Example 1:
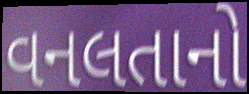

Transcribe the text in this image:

વનલતાનો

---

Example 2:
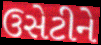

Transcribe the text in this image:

ઉસેટીને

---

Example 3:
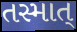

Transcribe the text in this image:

તસ્માત્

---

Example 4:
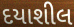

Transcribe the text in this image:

દયાશીલ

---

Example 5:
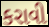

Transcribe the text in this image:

કરાવી